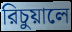
রিচুয়ালে